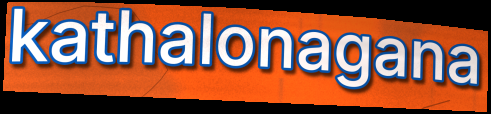
kathalonagana